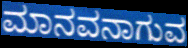
ಮಾನವನಾಗುವ